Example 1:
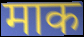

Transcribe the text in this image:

माक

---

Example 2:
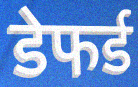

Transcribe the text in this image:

डेफर्ड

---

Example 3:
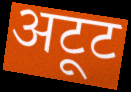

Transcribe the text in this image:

अटूट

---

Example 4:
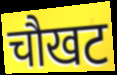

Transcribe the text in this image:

चौखट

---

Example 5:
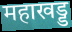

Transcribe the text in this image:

महाखड्ड